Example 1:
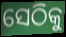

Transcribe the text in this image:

ସେଠିକୁ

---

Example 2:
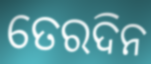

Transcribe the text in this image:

ତେରଦିନ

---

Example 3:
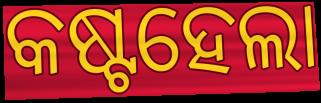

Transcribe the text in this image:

କଷ୍ଟହେଲା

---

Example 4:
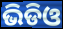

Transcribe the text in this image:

ଭିଡିଓ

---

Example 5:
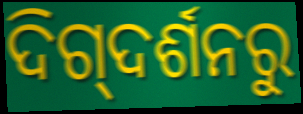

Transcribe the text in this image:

ଦିଗ୍‌ଦର୍ଶନରୁ